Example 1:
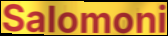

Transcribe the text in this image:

Salomoni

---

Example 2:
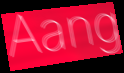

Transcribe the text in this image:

Aang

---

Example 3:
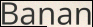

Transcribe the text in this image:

Banan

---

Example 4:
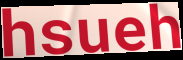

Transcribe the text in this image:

hsueh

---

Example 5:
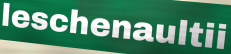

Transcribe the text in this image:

leschenaultii